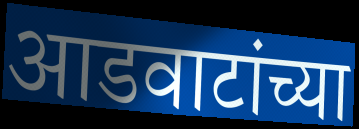
आडवाटांच्या